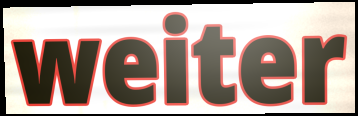
weiter